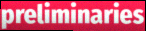
preliminaries